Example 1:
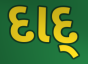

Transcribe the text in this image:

દાદ્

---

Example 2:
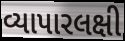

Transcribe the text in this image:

વ્યાપારલક્ષી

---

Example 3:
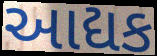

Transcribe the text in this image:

આદ્યક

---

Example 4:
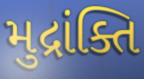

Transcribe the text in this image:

મુદ્રાંક્તિ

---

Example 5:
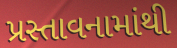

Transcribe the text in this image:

પ્રસ્તાવનામાંથી